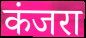
कंजरा